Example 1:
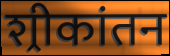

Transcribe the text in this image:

श्रीकांतन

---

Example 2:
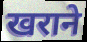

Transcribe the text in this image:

खराने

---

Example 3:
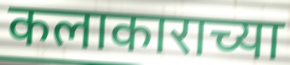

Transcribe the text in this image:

कलाकाराच्या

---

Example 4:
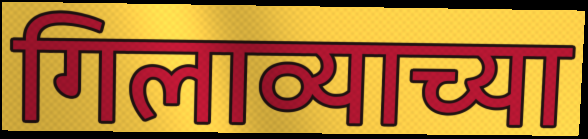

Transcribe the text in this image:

गिलाव्याच्या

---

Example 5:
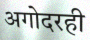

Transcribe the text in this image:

अगोदरही